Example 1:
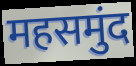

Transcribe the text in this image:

महसमुंद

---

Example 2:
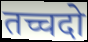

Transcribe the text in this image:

तच्चदो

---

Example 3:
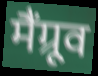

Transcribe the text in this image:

मैंग्रूव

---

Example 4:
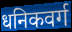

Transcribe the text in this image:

धनिकवर्ग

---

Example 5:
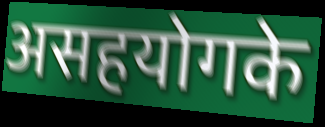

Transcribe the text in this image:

असहयोगके